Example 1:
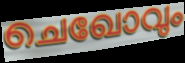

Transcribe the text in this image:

ചെഖോവും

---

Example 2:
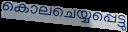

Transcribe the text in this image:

കൊലചെയ്യപ്പെട്ടു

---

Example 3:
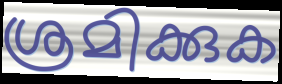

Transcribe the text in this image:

ശ്രമിക്കുക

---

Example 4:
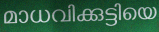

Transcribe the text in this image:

മാധവിക്കുട്ടിയെ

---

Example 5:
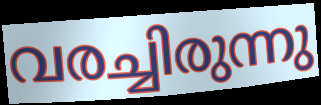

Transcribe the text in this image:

വരച്ചിരുന്നു